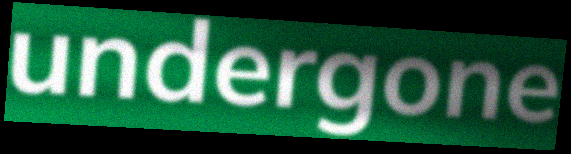
undergone